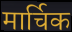
मार्चिक